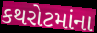
કથરોટમાંના